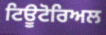
ਟਿਊਟੋਰਿਅਲ